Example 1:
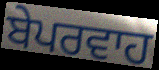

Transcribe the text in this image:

ਬੇਪਰਵਾਹ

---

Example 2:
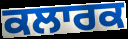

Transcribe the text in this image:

ਕਲਾਰਕ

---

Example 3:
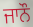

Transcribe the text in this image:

ਜਾਨੌ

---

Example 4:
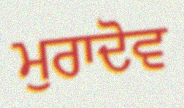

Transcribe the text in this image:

ਮੁਰਾਦੋਵ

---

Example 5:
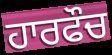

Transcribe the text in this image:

ਹਾਰਫੌਚ